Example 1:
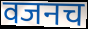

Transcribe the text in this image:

वजनच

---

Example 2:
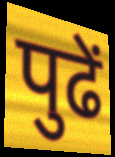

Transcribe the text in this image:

पुढें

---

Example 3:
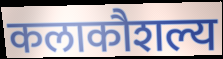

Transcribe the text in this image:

कलाकौशल्य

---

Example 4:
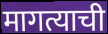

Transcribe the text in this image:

मागत्याची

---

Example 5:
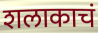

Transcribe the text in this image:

शलाकाचं